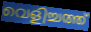
വെളിച്ചത്ത്